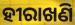
ହୀରାଖଣି